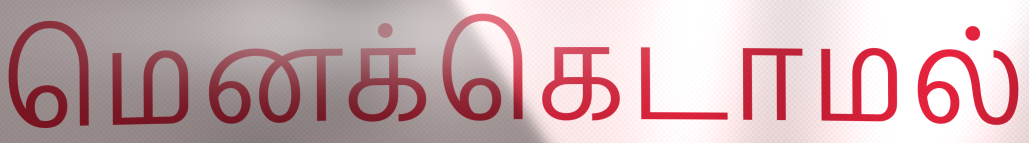
மெனக்கெடாமல்